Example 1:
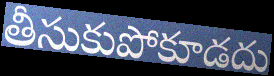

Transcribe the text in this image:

తీసుకుపోకూడదు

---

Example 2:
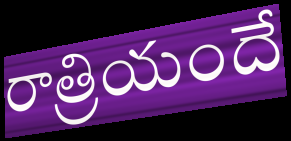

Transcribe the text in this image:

రాత్రియందే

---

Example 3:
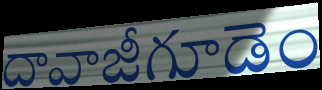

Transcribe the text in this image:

దావాజీగూడెం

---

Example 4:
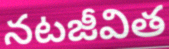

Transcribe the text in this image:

నటజీవిత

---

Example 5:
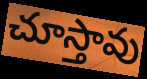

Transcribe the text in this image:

చూస్తావు